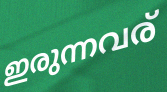
ഇരുന്നവര്